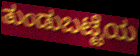
ತುಂಡುಬಟ್ಟೆಯ